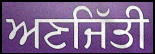
ਅਣਜਿੱਤੀ